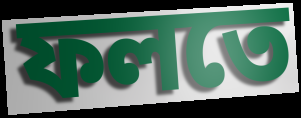
ফলতে